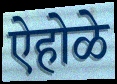
ऐहोळे